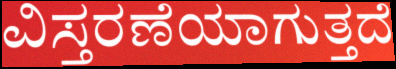
ವಿಸ್ತರಣೆಯಾಗುತ್ತದೆ